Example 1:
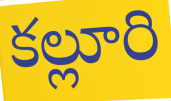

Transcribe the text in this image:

కల్లూరి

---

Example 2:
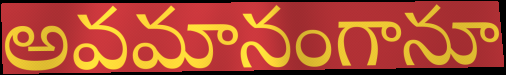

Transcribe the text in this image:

అవమానంగానూ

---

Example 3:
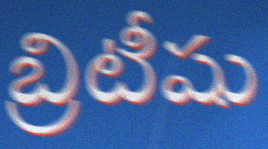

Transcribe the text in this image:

బ్రిటీషు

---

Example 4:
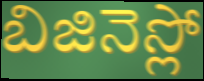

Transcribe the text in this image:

బిజినెస్లో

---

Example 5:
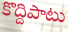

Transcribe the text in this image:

కొద్దిపాటు